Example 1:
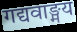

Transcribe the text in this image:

गद्यवाङ्मय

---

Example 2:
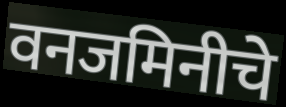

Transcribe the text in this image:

वनजमिनीचे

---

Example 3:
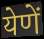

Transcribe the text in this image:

येणें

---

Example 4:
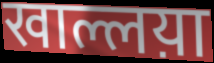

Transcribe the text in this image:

खाल्लय़ा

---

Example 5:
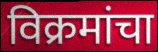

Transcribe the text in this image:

विक्रमांचा